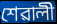
শেৱালী